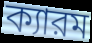
ক্যারম